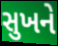
સુખને